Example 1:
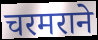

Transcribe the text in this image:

चरमराने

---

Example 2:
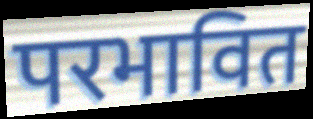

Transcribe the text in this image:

परभावित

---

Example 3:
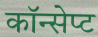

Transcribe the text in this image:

कॉन्‍सेप्‍ट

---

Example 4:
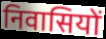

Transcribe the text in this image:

निवासियों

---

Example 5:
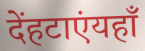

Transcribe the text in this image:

देंहटाएंयहाँ